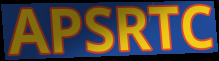
APSRTC